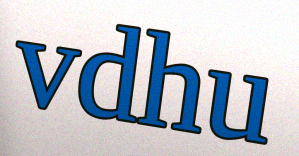
vdhu